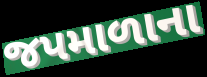
જપમાળાના